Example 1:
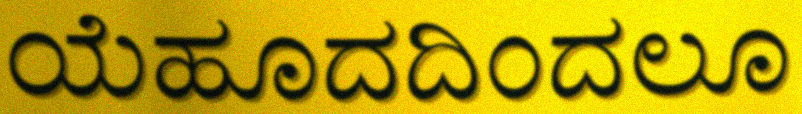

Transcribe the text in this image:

ಯೆಹೂದದಿಂದಲೂ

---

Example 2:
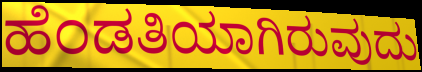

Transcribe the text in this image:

ಹೆಂಡತಿಯಾಗಿರುವುದು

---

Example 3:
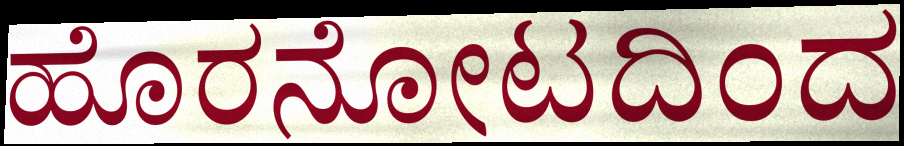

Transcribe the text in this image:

ಹೊರನೋಟದಿಂದ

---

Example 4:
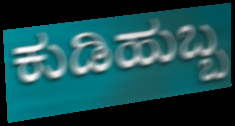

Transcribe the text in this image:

ಕುಡಿಹುಬ್ಬ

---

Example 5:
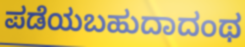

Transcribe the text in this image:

ಪಡೆಯಬಹುದಾದಂಥ